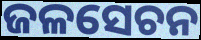
ଜଳସେଚନ